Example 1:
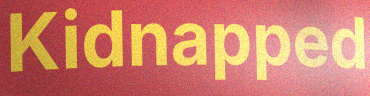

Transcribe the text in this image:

Kidnapped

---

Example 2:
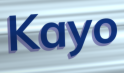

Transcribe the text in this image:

Kayo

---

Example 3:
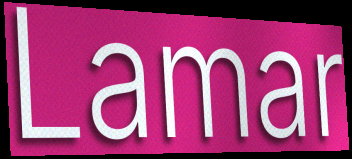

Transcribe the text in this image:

Lamar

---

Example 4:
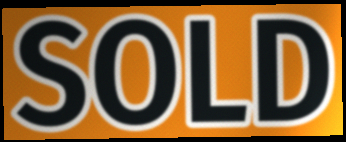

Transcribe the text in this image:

SOLD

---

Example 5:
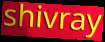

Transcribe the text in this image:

shivray